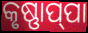
କୃଷ୍ଣାପ୍‌ପା